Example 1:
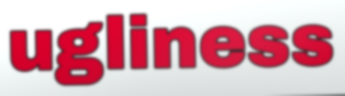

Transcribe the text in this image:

ugliness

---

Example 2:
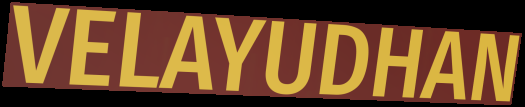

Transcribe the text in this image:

VELAYUDHAN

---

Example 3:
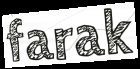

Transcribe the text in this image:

farak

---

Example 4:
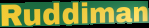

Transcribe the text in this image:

Ruddiman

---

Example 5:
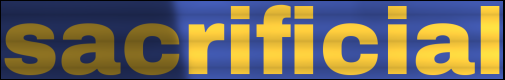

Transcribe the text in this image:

sacrificial